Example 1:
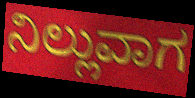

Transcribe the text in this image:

ನಿಲ್ಲುವಾಗ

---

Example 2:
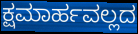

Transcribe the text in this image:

ಕ್ಷಮಾರ್ಹವಲ್ಲದ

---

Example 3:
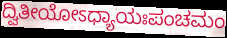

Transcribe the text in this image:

ದ್ವಿತೀಯೋಽಧ್ಯಾಯಃಪಂಚಮಂ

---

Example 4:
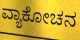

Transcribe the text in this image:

ವ್ಯಾಕೋಚನ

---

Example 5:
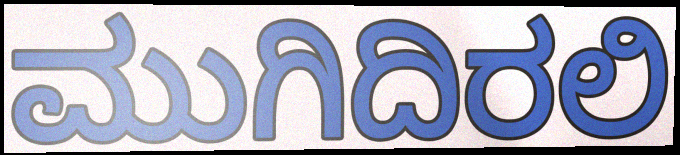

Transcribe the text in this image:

ಮುಗಿದಿರಲಿ